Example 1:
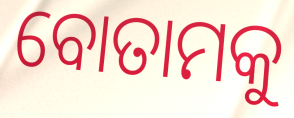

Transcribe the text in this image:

ବୋତାମକୁ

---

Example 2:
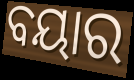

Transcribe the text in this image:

ବୟାର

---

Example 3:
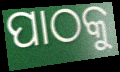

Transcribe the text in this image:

ପାଠକୁ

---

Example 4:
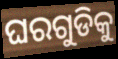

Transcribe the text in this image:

ଘରଗୁଡିକୁ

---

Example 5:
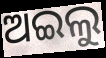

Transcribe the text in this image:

ଅଇଲୁ